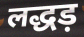
लद्धड़